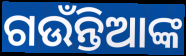
ଗଉଁନ୍ତିଆଙ୍କ